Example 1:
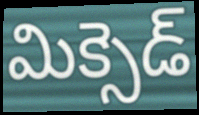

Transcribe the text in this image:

మిక్సెడ్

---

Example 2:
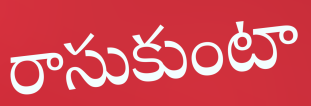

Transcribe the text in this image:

రాసుకుంటా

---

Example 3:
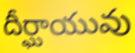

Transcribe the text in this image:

దీర్ఘాయువు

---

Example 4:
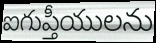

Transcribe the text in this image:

ఐగుప్తీయులను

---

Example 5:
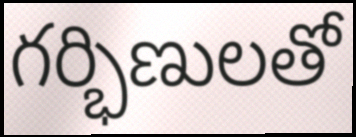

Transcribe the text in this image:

గర్భిణులతో